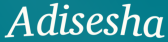
Adisesha